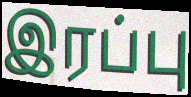
இரப்பு